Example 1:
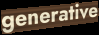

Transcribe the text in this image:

generative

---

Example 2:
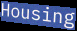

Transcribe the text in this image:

Housing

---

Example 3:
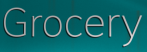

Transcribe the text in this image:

Grocery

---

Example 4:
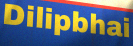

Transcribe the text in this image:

Dilipbhai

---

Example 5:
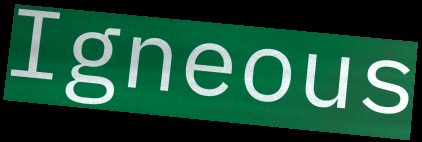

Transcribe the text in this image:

Igneous